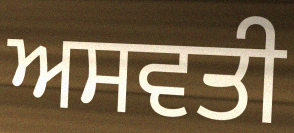
ਅਸਵਤੀ